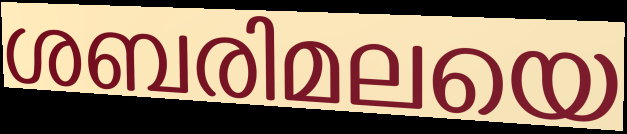
ശബരിമലയെ